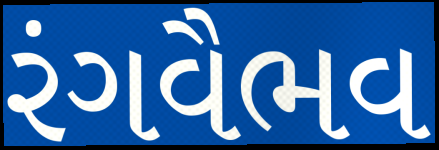
રંગવૈભવ